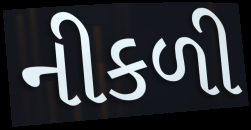
નીકળી